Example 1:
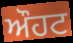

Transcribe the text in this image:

ਔਹਟ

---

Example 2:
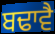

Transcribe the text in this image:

ਬਢਾਵੈ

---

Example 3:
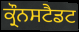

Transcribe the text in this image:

ਕ੍ਰੌਨਸਟੈਡਟ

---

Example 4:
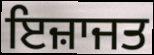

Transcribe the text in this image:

ਇਜ਼ਾਜਤ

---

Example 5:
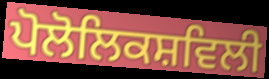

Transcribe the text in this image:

ਪੋਲੋਲਿਕਸ਼ਵਿਲੀ